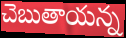
చెబుతాయన్న